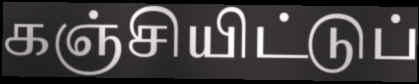
கஞ்சியிட்டுப்